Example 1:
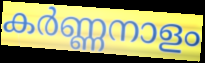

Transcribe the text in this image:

കർണ്ണനാളം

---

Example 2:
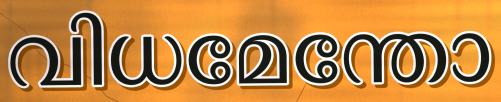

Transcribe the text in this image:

വിധമേന്തോ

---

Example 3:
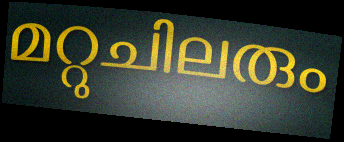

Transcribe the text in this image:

മറ്റുചിലരും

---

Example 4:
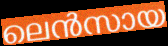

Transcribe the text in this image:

ലെൻസായ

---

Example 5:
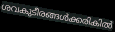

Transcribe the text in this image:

ശവകുടീരങ്ങൾക്കരികിൽ